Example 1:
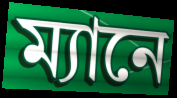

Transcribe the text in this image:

ম্যানে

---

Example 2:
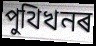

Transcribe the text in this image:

পুথিখনৰ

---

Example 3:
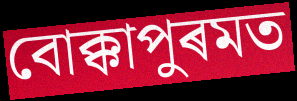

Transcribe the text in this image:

বোক্কাপুৰমত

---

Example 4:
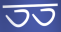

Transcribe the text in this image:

তত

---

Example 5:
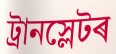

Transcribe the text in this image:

ট্ৰানস্লেটৰ